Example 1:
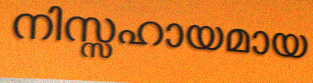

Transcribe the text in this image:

നിസ്സഹായമായ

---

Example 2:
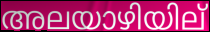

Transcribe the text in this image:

അലയാഴിയില്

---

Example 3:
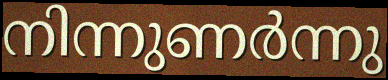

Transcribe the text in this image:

നിന്നുണർന്നു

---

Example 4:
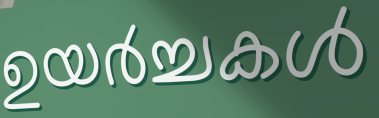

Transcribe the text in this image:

ഉയർച്ചകൾ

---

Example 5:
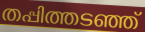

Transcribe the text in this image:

തപ്പിത്തടഞ്ഞ്